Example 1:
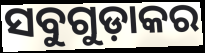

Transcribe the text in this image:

ସବୁଗୁଡ଼ାକର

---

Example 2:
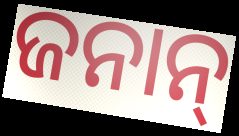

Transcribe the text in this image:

ଜନାନ୍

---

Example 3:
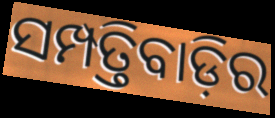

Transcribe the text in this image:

ସମ୍ପତ୍ତିବାଡ଼ିର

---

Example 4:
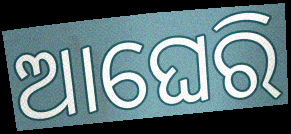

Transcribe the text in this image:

ଆଘେରି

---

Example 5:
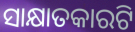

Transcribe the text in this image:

ସାକ୍ଷାତକାରଟି